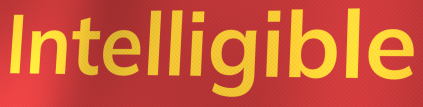
Intelligible